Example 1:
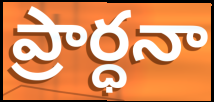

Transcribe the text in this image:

ప్రార్ధనా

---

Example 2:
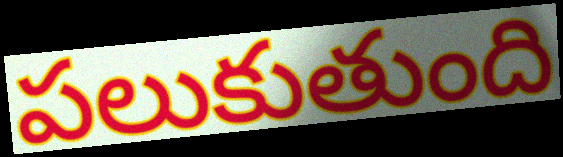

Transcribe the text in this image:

పలుకుతుంది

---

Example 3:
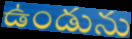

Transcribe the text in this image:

ఉండును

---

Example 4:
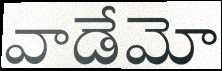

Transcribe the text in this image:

వాడేమో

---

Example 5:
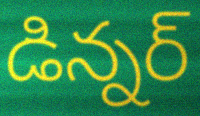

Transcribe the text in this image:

డిన్నర్